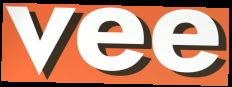
vee